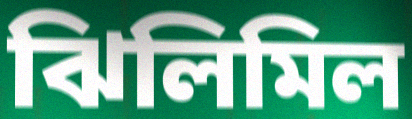
ঝিলিমিল